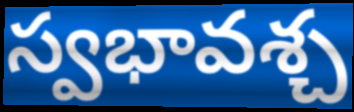
స్వభావశ్చ